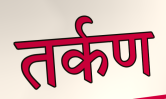
तर्कण